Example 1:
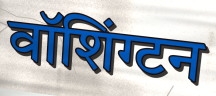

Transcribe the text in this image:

वॉशिंग्टन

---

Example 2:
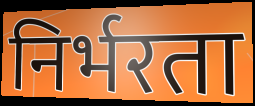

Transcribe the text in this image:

निर्भरता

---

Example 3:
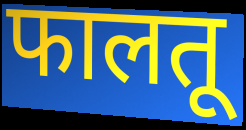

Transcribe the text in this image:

फालतू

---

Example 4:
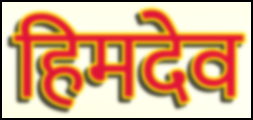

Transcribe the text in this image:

हिमदेव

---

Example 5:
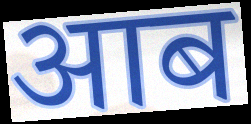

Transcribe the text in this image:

आब